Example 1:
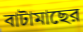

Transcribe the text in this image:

বাটামাছের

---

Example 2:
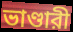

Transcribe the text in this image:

ভাণ্ডারী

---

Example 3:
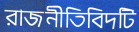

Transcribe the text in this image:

রাজনীতিবিদটি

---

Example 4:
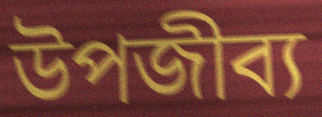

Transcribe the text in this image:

উপজীব্য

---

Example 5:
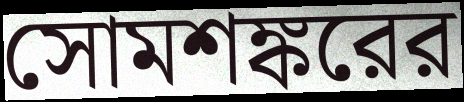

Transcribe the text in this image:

সোমশঙ্করের